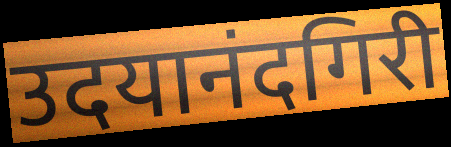
उदयानंदगिरी